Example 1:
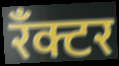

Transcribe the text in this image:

रँक्टर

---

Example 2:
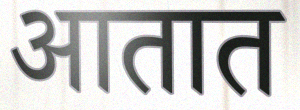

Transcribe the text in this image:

आतात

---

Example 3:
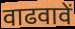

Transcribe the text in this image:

वाढवावें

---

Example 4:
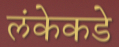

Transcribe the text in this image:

लंकेकडे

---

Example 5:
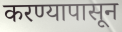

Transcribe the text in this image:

करण्यापासून